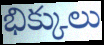
భిక్కులు